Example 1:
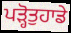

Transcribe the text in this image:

ਪੜ੍ਹੋਤੁਹਾਡੇ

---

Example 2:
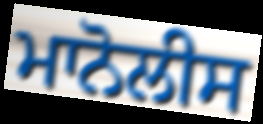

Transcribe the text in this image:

ਮਾਨੋਲੀਸ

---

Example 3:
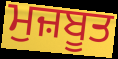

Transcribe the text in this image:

ਮੁਜ਼ਬੂਤ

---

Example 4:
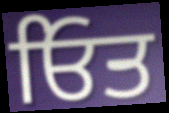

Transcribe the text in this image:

ਓਿਤ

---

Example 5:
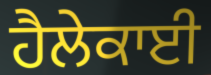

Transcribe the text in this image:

ਹੈਲੇਕਾਈ